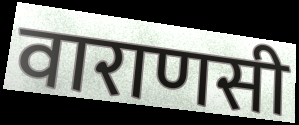
वाराणसी